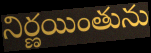
నిర్ణయింతును